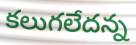
కలుగలేదన్న